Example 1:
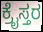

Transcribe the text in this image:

ಕ್ರೈಸ್ತರ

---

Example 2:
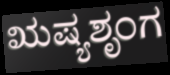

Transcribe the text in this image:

ಋಷ್ಯಶೃಂಗ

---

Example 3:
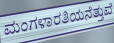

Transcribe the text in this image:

ಮಂಗಳಾರತಿಯನೆತ್ತುವೆ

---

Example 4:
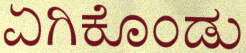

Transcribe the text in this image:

ಏಗಿಕೊಂಡು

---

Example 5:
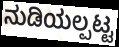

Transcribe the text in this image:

ನುಡಿಯಲ್ಪಟ್ಟ